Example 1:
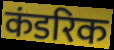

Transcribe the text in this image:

कंडरिक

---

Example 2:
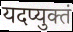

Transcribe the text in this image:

यदप्युक्तं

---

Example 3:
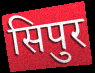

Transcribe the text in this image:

सिपुर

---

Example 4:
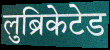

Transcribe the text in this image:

लुब्रिकेटेड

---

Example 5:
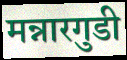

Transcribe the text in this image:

मन्नारगुडी